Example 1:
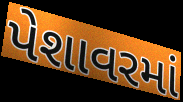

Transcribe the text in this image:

પેશાવરમાં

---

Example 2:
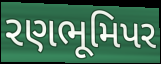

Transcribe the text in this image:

રણભૂમિપર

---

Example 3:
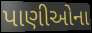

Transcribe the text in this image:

પાણીઓના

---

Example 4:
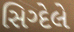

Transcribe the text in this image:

સિગ્દેલે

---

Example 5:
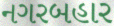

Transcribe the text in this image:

નગરબહાર